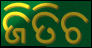
ଜିତିଚ